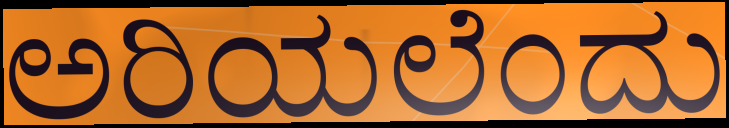
ಅರಿಯಲೆಂದು